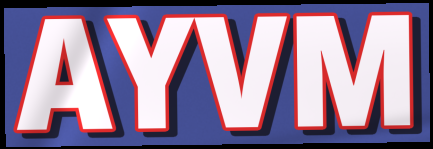
AYVM